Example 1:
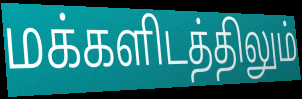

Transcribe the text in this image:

மக்களிடத்திலும்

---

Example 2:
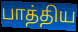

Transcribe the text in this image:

பாத்திய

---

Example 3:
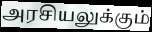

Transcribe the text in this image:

அரசியலுக்கும்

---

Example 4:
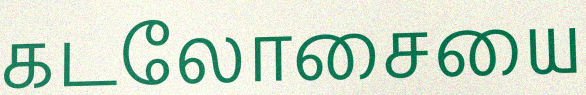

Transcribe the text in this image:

கடலோசையை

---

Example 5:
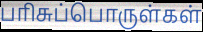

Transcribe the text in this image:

பரிசுப்பொருள்கள்